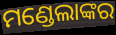
ମଣ୍ଡେଲାଙ୍କର